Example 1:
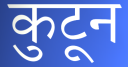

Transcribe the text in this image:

कुटून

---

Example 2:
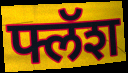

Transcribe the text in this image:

फ्लॅश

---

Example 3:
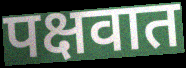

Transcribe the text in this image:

पक्षवात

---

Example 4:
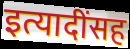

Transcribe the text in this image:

इत्यादींसह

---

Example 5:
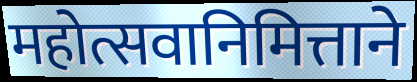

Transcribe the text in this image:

महोत्सवानिमित्ताने